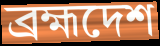
ব্রহ্মদেশ